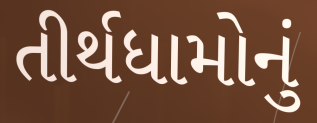
તીર્થધામોનું